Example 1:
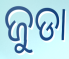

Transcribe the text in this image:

ଜୁଡା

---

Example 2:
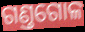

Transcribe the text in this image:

ଗଣ୍ତଗୋଳ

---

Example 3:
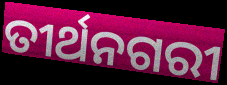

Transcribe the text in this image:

ତୀର୍ଥନଗରୀ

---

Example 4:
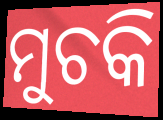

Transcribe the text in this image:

ମୁଚକି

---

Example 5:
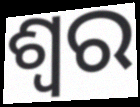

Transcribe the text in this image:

ଶ୍ୱର